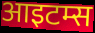
आइटम्स